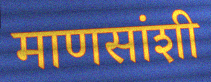
माणसांशी